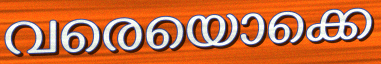
വരെയൊക്കെ